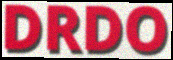
DRDO